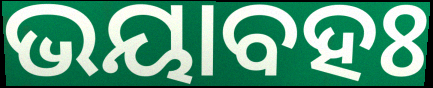
ଭୟାବହଃ